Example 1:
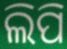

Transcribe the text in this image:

ଲିପି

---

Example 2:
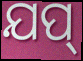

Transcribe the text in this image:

ଯପ୍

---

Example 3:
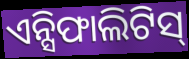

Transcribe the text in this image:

ଏନ୍ସିଫାଲିଟିସ୍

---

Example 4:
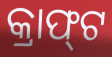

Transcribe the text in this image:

କ୍ରାଫ୍‌ଟ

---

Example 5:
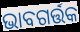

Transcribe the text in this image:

ଭାବଗର୍ତ୍ତକ